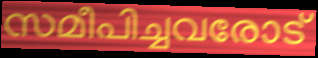
സമീപിച്ചവരോട്